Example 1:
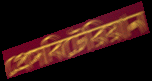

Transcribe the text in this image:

প্রেসবিটেরিয়ান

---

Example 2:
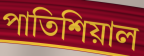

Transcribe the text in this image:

পাতিশিয়াল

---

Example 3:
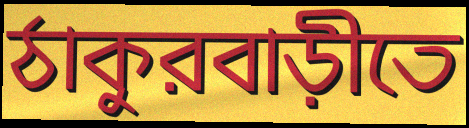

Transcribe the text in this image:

ঠাকুরবাড়ীতে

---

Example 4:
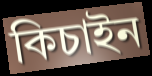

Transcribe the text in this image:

কিচাইন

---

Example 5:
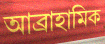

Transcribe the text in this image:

আব্রাহামিক